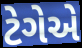
ટેગેએ